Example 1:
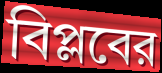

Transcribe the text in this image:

বিপ্লবের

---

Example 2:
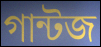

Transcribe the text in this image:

গান্টজ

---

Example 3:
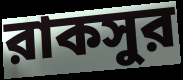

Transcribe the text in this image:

রাকসুর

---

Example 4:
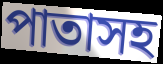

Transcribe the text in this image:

পাতাসহ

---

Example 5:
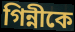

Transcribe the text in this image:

গিন্নীকে